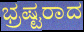
ಭ್ರಷ್ಟರಾದ